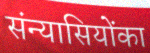
संन्यासियोंका